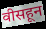
वीसहून